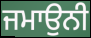
ਜਮਾਉਨੀ